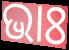
ଭାଃ